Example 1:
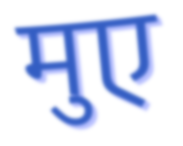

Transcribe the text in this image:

मुए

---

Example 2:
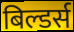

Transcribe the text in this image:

बिल्डर्स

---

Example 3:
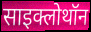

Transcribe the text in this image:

साइक्लोथॉन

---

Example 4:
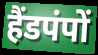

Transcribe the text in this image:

हैंडपंपों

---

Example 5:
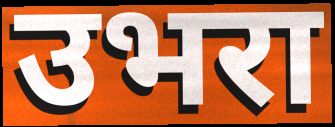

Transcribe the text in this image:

उभरा